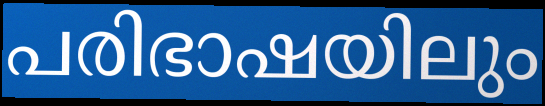
പരിഭാഷയിലും